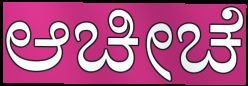
ಆಚೀಚೆ